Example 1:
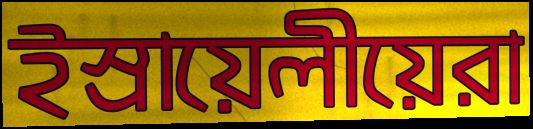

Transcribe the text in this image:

ইস্রায়েলীয়েরা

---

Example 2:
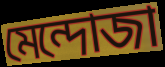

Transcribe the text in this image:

মেন্দোজা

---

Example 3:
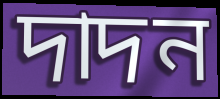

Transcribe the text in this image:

দাদন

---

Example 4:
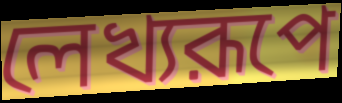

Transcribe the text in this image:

লেখ্যরূপে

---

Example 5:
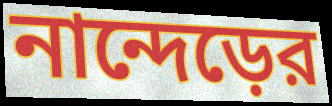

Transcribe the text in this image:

নান্দেড়ের